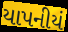
યાપનીયં